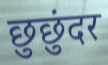
छुछुंदर